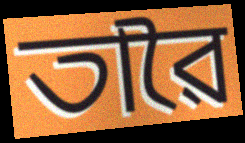
তাৱৈ